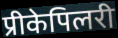
प्रीकेपिलरी